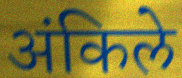
अंकिले